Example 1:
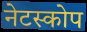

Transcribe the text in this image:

नेटस्कोप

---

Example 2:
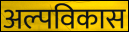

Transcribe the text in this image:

अल्पविकास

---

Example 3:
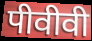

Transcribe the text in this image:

पीवीवी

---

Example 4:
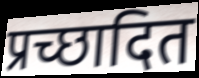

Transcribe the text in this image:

प्रच्छादित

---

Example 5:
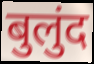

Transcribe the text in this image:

बुलुंद